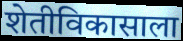
शेतीविकासाला